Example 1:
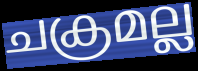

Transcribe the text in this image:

ചക്രമല്ല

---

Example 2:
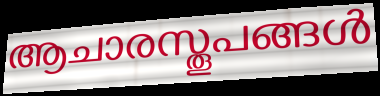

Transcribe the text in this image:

ആചാരസ്തൂപങ്ങൾ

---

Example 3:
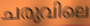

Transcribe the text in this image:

ചരുവിലെ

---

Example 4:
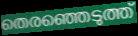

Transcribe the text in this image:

തെരഞ്ഞെടുത്ത്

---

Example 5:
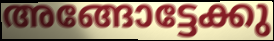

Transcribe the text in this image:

അങ്ങോട്ടേക്കു